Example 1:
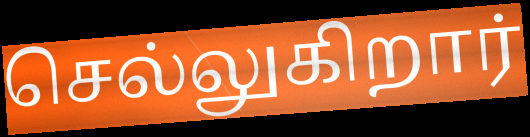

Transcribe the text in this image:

செல்லுகிறார்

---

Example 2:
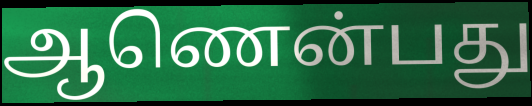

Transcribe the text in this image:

ஆணென்பது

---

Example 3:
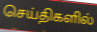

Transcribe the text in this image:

செய்திகளில்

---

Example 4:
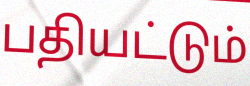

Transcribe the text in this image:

பதியட்டும்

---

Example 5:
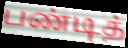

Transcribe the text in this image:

பண்டித்